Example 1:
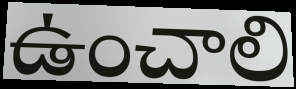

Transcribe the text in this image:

ఉంచాలి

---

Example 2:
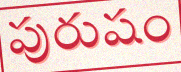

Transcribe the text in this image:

పురుషం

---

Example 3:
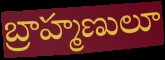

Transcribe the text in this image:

బ్రాహ్మణులూ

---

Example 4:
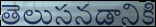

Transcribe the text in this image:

తెలుసనడానికి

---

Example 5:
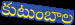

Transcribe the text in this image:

కుటుంబాల